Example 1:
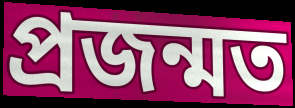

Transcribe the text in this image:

প্ৰজন্মত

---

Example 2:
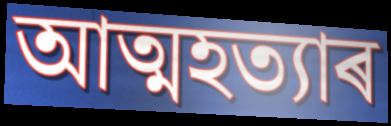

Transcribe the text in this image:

আত্মহত্যাৰ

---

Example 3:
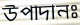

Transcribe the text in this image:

উপাদানঃ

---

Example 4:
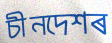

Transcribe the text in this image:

চীনদেশৰ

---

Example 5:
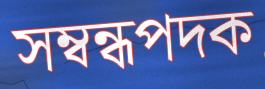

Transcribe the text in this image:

সম্বন্ধপদক